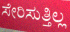
ಸೇರಿಸುತ್ತಿಲ್ಲ